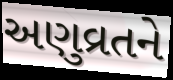
અણુવ્રતને